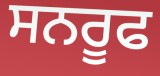
ਸਨਰੂਫ